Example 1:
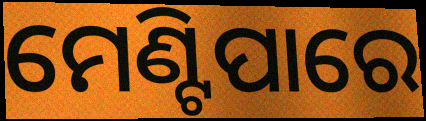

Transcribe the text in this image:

ମେଣ୍ଟିପାରେ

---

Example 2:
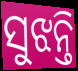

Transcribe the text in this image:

ସୁଝନ୍ତି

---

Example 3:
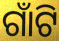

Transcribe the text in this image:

ଗାଁଟି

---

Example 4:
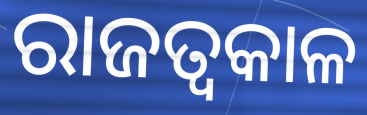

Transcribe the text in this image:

ରାଜତ୍ଵକାଳ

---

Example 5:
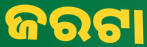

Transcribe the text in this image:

ଜରଟା